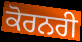
ਕੋਰਨਰੀ